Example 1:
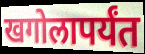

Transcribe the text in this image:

खगोलापर्यंत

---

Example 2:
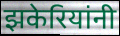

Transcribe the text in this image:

झकेरियांनी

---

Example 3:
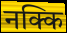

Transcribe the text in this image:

नक्कि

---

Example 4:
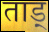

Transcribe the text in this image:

ताड्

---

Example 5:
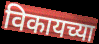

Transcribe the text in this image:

विकायच्या